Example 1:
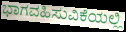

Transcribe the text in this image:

ಭಾಗವಹಿಸುವಿಕೆಯಲ್ಲಿ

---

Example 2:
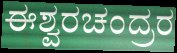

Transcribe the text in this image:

ಈಶ್ವರಚಂದ್ರರ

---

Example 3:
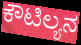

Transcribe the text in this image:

ಕೌಟಿಲ್ಯನ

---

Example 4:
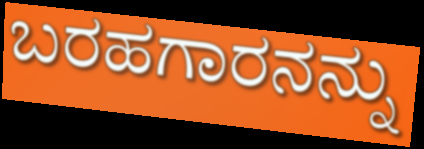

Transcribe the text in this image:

ಬರಹಗಾರನನ್ನು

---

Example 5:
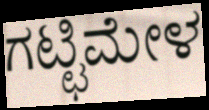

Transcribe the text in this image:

ಗಟ್ಟಿಮೇಳ